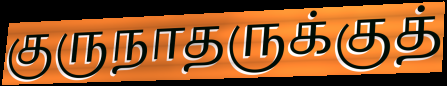
குருநாதருக்குத்